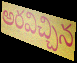
అరవిచ్చిన